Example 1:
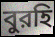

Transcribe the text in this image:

বুরহি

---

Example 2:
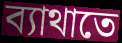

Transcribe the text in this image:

ব্যাথাতে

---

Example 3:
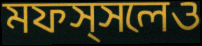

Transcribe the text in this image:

মফস্‌সলেও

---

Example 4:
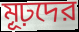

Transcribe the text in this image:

মূঢ়দের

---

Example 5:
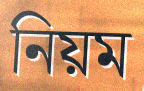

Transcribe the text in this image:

নিয়ম